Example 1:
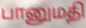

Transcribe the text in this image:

பானுமதி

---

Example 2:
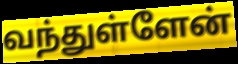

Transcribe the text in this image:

வந்துள்ளேன்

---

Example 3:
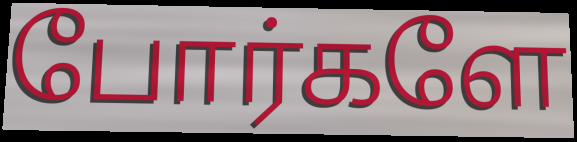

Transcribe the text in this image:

போர்களே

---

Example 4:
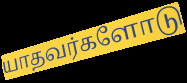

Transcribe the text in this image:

யாதவர்களோடு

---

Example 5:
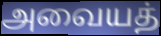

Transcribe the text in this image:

அவையத்